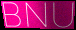
BNU